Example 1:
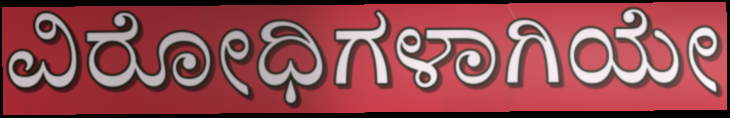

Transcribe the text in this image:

ವಿರೋಧಿಗಳಾಗಿಯೇ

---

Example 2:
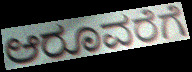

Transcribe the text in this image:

ಆರೂವರೆಗೆ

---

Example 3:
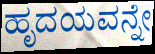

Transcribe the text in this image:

ಹೃದಯವನ್ನೇ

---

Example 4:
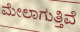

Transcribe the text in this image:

ಮೇಲಾಗುತ್ತಿವೆ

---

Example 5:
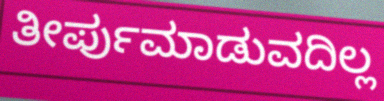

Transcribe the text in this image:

ತೀರ್ಪುಮಾಡುವದಿಲ್ಲ